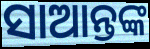
ସାଆନ୍ତଙ୍କ